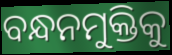
ବନ୍ଧନମୁକ୍ତିକୁ